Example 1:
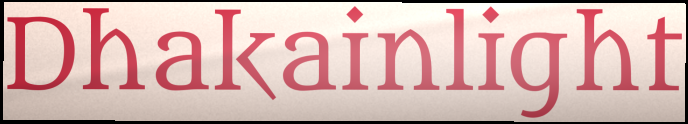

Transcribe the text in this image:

Dhakainlight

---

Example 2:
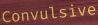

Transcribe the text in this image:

Convulsive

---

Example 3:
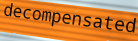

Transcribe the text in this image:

decompensated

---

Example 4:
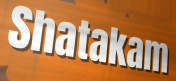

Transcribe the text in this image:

Shatakam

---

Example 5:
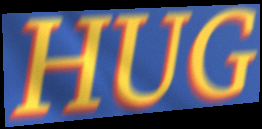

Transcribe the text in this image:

HUG